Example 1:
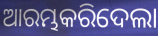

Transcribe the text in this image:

ଆରମ୍ଭକରିଦେଲା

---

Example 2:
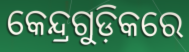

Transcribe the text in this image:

କେନ୍ଦ୍ରଗୁଡ଼ିକରେ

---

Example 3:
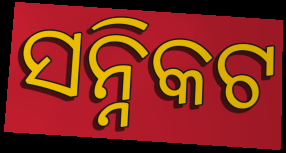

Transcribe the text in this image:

ସନ୍ନିକଟ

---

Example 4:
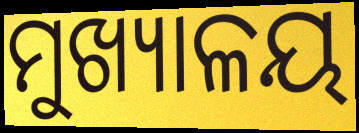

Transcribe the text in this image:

ମୁଖ୍ୟାଳୟ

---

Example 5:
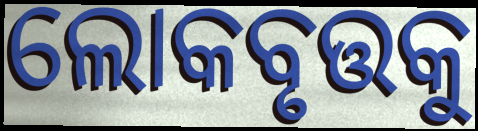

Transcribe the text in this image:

ଲୋକବୃତ୍ତକୁ